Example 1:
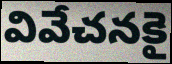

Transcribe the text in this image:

వివేచనకై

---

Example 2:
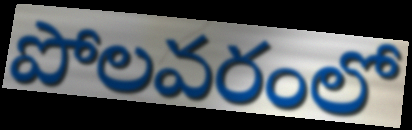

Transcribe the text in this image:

పోలవరంలో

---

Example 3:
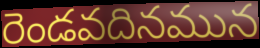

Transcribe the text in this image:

రెండవదినమున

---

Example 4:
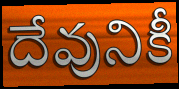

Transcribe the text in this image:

దేవునికీ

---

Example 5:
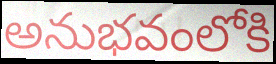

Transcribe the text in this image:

అనుభవంలోకి